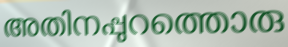
അതിനപ്പുറത്തൊരു